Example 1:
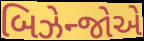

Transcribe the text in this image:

બિઝેન્જોએ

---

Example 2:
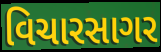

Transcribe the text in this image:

વિચારસાગર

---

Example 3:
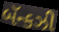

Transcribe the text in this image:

બૅન્કઝી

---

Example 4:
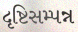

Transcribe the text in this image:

દૃષ્ટિસમ્પન્ન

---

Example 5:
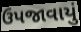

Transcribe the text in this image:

ઉપજાવાયું